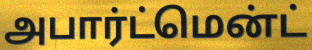
அபார்ட்மென்ட்